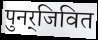
पुनर्जिवित